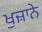
ਖੁਜ਼ਾਨੇ